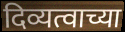
दिव्यत्वाच्या